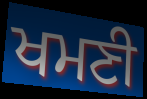
ਖਮਣੀ